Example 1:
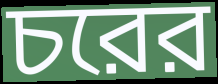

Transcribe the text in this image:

চরের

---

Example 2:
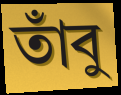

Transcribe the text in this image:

তাঁবু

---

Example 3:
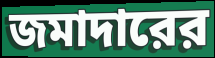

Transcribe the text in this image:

জমাদারের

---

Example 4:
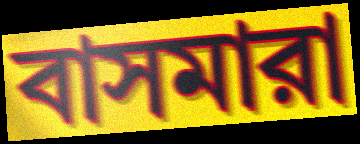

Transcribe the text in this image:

বাসমারা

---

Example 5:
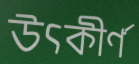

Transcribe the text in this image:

উৎকীর্ণ